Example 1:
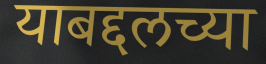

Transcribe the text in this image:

याबद्दलच्या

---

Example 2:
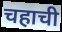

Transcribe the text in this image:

चहाची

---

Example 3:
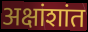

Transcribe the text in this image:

अक्षांशांत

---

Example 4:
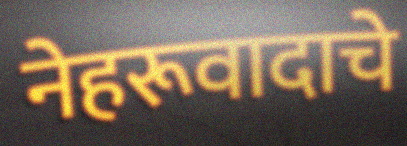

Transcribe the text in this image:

नेहरूवादाचे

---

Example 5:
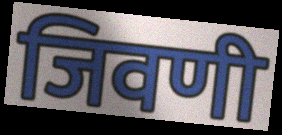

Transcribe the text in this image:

जिवणी